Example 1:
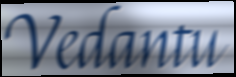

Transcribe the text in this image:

Vedantu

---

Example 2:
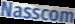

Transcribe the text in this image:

Nasscom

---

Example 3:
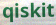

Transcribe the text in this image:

qiskit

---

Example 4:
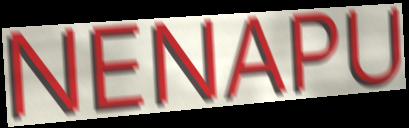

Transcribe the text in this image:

NENAPU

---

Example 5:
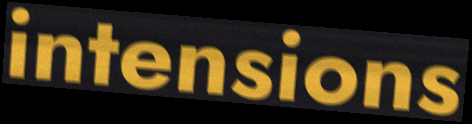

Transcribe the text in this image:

intensions